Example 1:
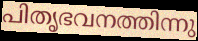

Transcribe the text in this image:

പിതൃഭവനത്തിന്നു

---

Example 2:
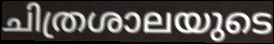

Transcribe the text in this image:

ചിത്രശാലയുടെ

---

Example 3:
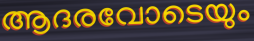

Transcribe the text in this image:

ആദരവോടെയും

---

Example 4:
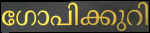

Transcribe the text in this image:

ഗോപിക്കുറി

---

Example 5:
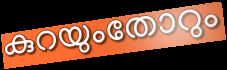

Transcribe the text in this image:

കുറയുംതോറും